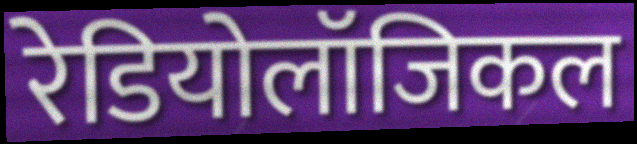
रेडियोलॉजिकल